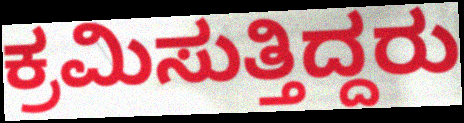
ಕ್ರಮಿಸುತ್ತಿದ್ದರು